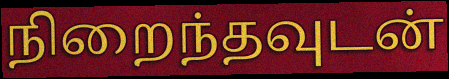
நிறைந்தவுடன்